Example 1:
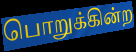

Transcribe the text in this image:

பொறுக்கின்ற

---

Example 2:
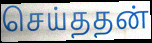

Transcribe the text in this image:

செய்ததன்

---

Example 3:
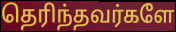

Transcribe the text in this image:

தெரிந்தவர்களே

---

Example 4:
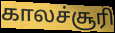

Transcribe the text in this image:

காலச்சூரி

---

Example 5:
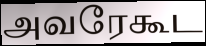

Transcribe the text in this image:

அவரேகூட